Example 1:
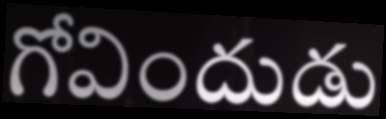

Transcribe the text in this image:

గోవిందుడు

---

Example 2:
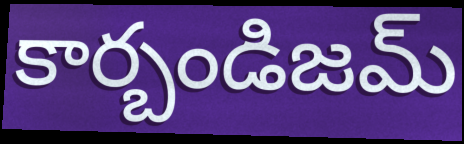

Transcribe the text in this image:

కార్బండిజమ్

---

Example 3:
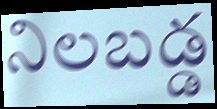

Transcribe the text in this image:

నిలబడ్డ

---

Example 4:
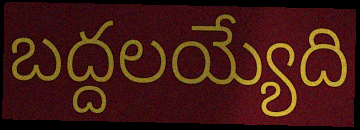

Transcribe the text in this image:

బద్దలయ్యేది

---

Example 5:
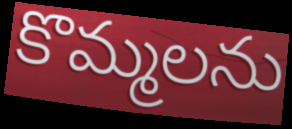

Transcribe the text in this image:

కొమ్మలను